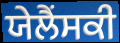
ਯੇਲੈਂਸਕੀ